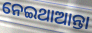
ନେଇଥାଆନ୍ତା